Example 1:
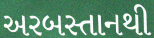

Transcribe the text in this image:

અરબસ્તાનથી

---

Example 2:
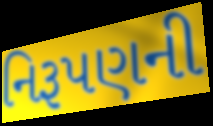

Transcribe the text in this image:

નિરૂપણની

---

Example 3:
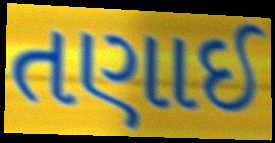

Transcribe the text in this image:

તણાઈ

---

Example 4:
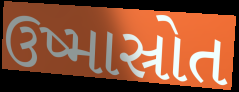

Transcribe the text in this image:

ઉષ્માસ્રોત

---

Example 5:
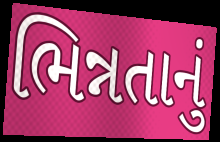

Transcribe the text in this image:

ભિન્નતાનું